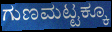
ಗುಣಮಟ್ಟಕ್ಕೂ